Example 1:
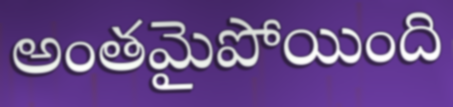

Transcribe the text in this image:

అంతమైపోయింది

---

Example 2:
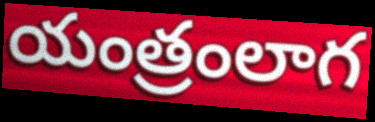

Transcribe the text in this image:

యంత్రంలాగ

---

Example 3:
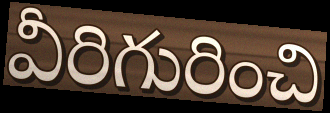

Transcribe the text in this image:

వీరిగురించి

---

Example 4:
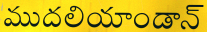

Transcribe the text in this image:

ముదలియాండాన్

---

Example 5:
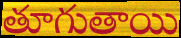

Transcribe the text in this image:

తూగుతాయి